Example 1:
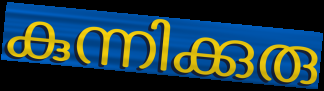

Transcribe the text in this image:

കുന്നിക്കുരു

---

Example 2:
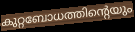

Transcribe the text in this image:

കുറ്റബോധത്തിന്റെയും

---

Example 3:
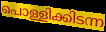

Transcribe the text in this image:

പൊള്ളിക്കിടന്ന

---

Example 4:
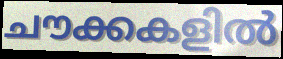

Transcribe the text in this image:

ചൗക്കകളിൽ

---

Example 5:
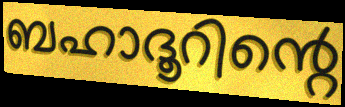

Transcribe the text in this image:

ബഹാദൂറിന്റെ